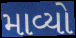
માવ્યો